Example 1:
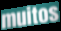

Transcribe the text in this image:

muitos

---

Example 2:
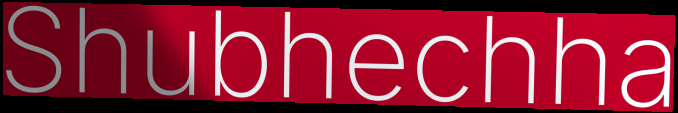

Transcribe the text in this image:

Shubhechha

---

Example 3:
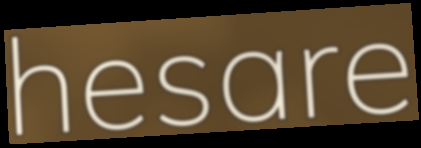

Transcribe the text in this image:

hesare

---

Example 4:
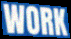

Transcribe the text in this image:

WORK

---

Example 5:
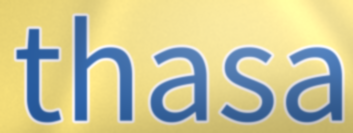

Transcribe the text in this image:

thasa